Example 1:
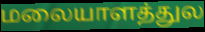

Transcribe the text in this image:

மலையாளத்துல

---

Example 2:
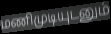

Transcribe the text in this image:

மணிமுடியுடனும்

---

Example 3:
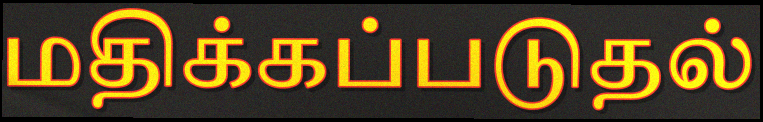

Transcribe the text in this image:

மதிக்கப்படுதல்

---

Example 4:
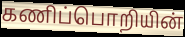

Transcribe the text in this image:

கணிப்பொறியின்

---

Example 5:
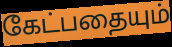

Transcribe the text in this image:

கேட்பதையும்